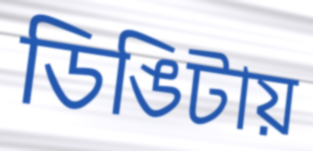
ডিঙিটায়